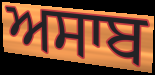
ਅਸਾਬ